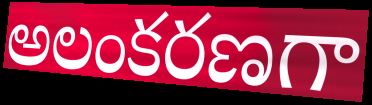
అలంకరణగా